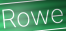
Rowe